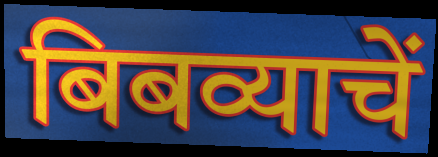
बिबव्याचें